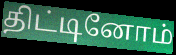
திட்டினோம்